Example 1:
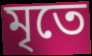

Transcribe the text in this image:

মৃতে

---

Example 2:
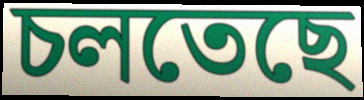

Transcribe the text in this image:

চলতেছে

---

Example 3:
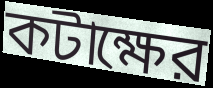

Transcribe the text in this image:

কটাক্ষের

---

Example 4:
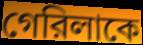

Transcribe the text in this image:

গেরিলাকে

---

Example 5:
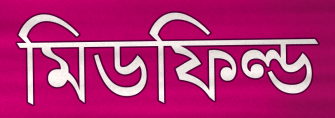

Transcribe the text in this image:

মিডফিল্ড